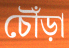
চৌঁড়া